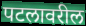
पटलावरील